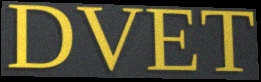
DVET